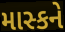
માસ્કને